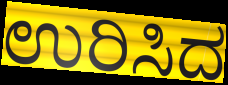
ಉರಿಸಿದ